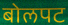
बोलपट